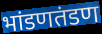
भांडणतंडण